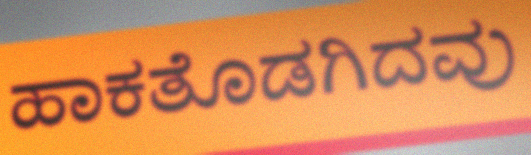
ಹಾಕತೊಡಗಿದವು